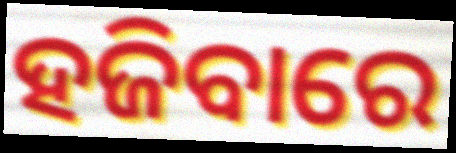
ହଜିବାରେ